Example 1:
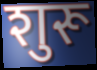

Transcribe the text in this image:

शुरू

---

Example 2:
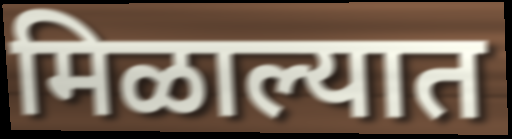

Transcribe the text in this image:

मिळाल्यात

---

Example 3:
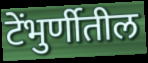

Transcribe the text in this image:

टेंभुर्णीतील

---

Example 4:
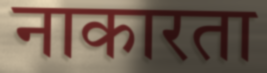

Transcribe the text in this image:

नाकारता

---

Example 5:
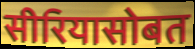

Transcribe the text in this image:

सीरियासोबत